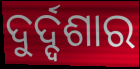
ଦୁର୍ଦ୍ଦଶାର